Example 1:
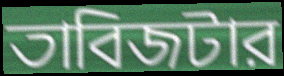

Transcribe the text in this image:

তাবিজটার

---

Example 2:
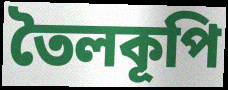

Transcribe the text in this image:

তৈলকূপি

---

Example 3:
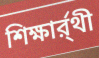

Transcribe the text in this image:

শিক্ষার্র্থী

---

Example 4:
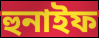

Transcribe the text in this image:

হুনাইফ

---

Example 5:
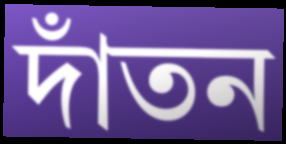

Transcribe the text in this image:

দাঁতন